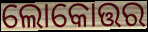
ଲୋକୋତ୍ତର